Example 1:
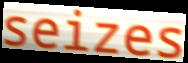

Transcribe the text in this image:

seizes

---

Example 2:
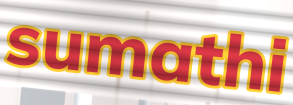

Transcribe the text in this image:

sumathi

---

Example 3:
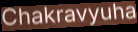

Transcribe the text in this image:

Chakravyuha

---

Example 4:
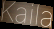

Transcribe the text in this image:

Kaila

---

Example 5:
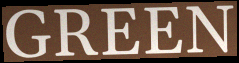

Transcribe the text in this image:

GREEN